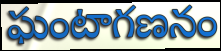
ఘంటాగణనం